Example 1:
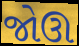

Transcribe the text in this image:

જોઊ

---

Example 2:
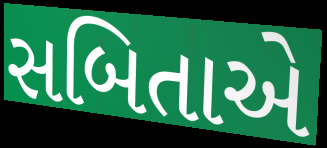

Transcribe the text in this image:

સબિતાએ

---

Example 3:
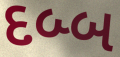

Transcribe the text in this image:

દબ્બ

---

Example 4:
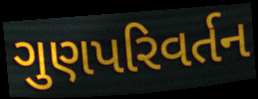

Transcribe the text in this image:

ગુણપરિવર્તન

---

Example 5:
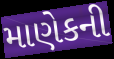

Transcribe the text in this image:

માણેકની